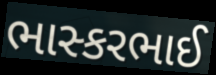
ભાસ્કરભાઈ